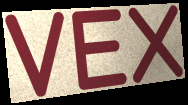
VEX